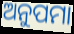
ଅନୁପମା